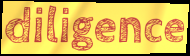
diligence